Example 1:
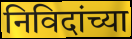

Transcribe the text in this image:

निविदांच्या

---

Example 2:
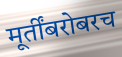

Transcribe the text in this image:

मूर्तींबरोबरच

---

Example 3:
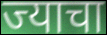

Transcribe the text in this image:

ज्याचा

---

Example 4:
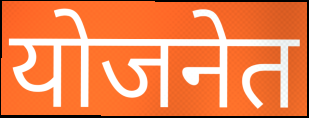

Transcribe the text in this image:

योजनेत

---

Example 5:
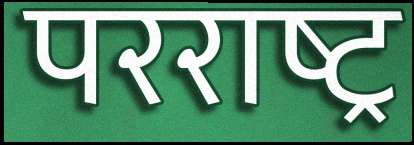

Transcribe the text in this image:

परराष्ट्र